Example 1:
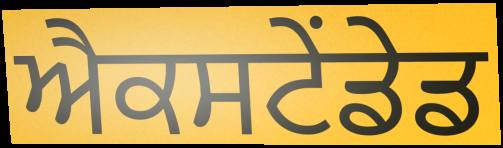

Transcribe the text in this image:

ਐਕਸਟੇਂਡੇਡ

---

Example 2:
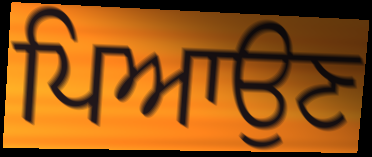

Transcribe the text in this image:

ਪਿਆਉਣ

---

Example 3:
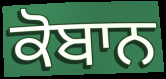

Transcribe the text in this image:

ਕੋਬਾਨ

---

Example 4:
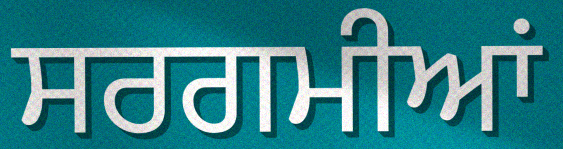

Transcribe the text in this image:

ਸਰਗਮੀਆਂ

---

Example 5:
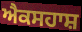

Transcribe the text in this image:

ਐਕਸਹਾਸ਼